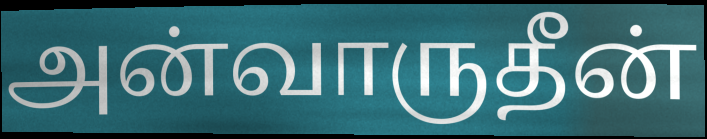
அன்வாருதீன்